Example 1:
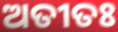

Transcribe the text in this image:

ଅତୀତଃ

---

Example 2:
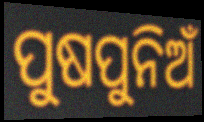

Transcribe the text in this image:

ପୁଷପୁନିଅଁ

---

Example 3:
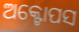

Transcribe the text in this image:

ଅକ୍ଟୋପସ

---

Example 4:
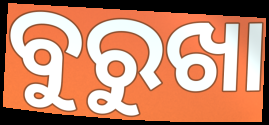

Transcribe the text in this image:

ବୁରୁଖା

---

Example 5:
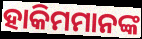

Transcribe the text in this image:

ହାକିମମାନଙ୍କ